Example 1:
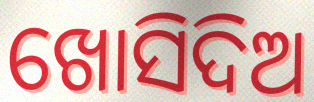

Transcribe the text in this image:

ଖୋସିଦିଅ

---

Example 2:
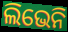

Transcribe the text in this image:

ଲିଭେନି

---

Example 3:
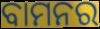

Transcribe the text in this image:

ବାମନର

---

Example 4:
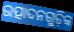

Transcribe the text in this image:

ଉତ୍ପାଦନଗୁଡ଼ିକ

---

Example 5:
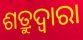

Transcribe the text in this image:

ଶତ୍ରୁଦ୍ଵାରା